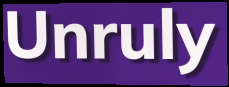
Unruly